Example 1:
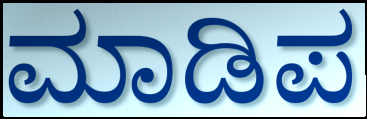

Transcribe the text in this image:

ಮಾಡಿಪ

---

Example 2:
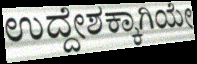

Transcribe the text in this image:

ಉದ್ದೇಶಕ್ಕಾಗಿಯೇ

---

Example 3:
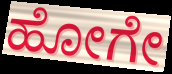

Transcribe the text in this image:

ಹೋಗೇ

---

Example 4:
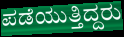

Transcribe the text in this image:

ಪಡೆಯುತ್ತಿದ್ದರು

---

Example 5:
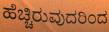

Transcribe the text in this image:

ಹೆಚ್ಚಿರುವುದರಿಂದ